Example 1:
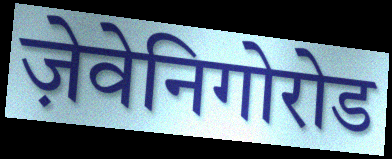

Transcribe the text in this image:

ज़ेवेनिगोरोड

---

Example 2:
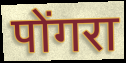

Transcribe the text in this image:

पोंगरा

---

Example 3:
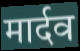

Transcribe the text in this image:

मार्दव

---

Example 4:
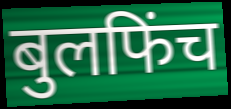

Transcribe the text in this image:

बुलफिंच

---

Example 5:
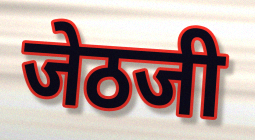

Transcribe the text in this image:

जेठजी